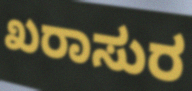
ಖರಾಸುರ